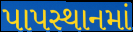
પાપસ્થાનમાં